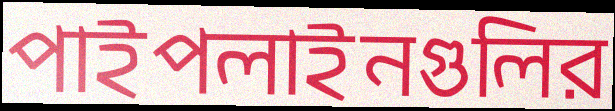
পাইপলাইনগুলির